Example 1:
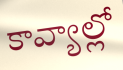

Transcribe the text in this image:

కావ్యాల్లో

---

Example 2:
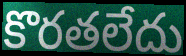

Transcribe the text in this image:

కొరతలేదు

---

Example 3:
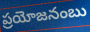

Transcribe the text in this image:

ప్రయోజనంబు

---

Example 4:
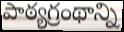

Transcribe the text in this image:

పాఠ్యగ్రంథాన్ని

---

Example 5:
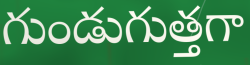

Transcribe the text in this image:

గుండుగుత్తగా